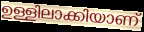
ഉള്ളിലാക്കിയാണ്